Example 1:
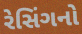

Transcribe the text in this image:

રેસિંગનો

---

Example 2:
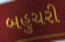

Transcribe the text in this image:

બહુચરી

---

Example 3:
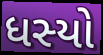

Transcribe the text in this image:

ધસ્યો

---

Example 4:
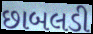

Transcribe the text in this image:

છાબલડી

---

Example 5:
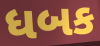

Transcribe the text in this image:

ધબક